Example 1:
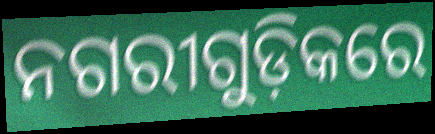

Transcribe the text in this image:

ନଗରୀଗୁଡ଼ିକରେ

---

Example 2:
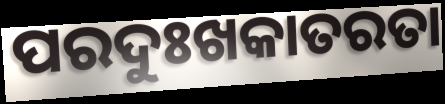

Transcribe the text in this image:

ପରଦୁଃଖକାତରତା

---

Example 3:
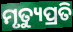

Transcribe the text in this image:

ମୃତ୍ୟୁପ୍ରତି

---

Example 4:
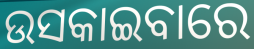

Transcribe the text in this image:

ଉସକାଇବାରେ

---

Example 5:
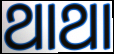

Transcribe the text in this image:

ଥାଥା